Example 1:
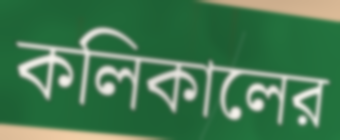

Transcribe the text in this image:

কলিকালের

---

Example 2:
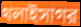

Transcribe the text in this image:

থলাইসাগর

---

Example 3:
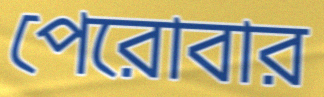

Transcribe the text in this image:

পেরোবার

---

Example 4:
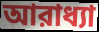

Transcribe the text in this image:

আরাধ্যা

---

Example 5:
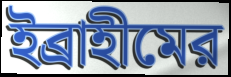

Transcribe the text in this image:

ইব্রাহীমের